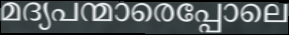
മദ്യപന്മാരെപ്പോലെ